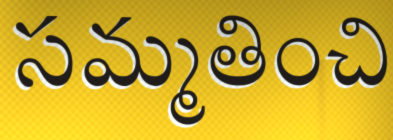
సమ్మతించి